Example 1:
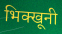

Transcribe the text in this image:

भिक्खूनी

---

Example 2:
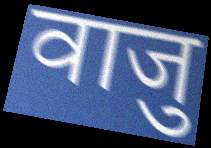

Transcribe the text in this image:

वाजु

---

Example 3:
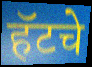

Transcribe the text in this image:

हॅटचे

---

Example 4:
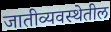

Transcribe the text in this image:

जातीव्यवस्थेतील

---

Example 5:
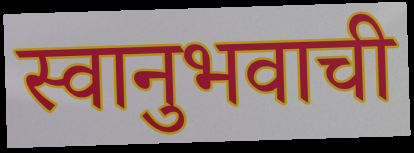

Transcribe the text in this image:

स्वानुभवाची